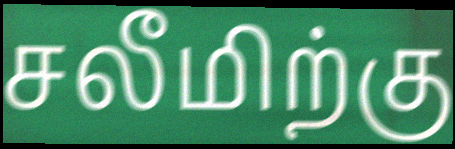
சலீமிற்கு